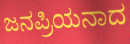
ಜನಪ್ರಿಯನಾದ